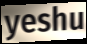
yeshu